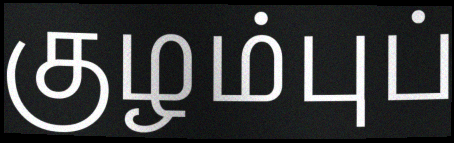
குழம்புப்